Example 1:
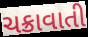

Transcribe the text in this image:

ચક્રાવાતી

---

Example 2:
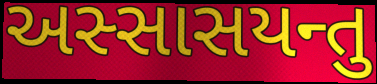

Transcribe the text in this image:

અસ્સાસયન્તુ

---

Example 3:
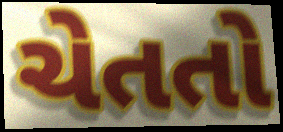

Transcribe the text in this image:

ચેતતો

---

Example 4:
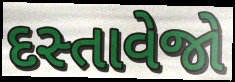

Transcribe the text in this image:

દસ્તાવેજો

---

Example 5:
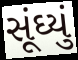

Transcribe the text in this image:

સૂંઘ્યું